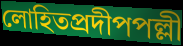
লোহিতপ্রদীপপল্লী